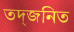
তদ্জনিত